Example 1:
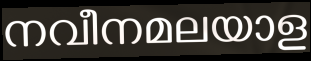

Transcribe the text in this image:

നവീനമലയാള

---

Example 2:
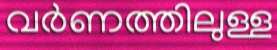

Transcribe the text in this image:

വർണത്തിലുള്ള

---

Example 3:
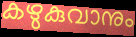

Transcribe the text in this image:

കഴുകുവാനും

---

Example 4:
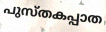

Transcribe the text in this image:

പുസ്തകപ്പാത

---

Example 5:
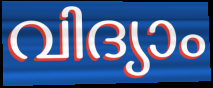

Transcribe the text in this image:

വിദ്യാം